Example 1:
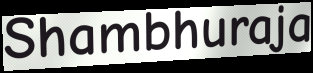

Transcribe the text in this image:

Shambhuraja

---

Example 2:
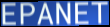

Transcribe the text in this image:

EPANET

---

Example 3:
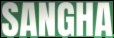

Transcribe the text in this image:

SANGHA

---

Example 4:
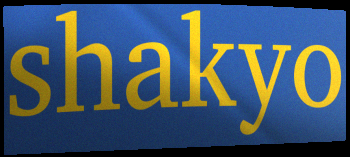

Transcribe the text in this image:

shakyo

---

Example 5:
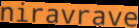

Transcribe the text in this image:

niravrave